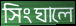
সিংঘালে